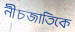
নীচজাতিকে